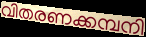
വിതരണക്കമ്പനി